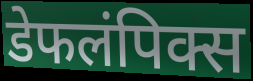
डेफलंपिक्स